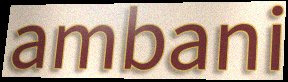
ambani